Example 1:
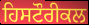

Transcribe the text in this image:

ਹਿਸਟੌਰੀਕਲ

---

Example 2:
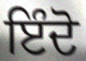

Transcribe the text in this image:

ਇੰਦੋ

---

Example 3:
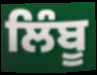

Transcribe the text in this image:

ਲਿੰਬੂ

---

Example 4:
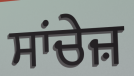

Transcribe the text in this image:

ਸਾਂਚੇਜ਼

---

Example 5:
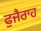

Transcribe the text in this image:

ਫੁਜੈਰਾਹ